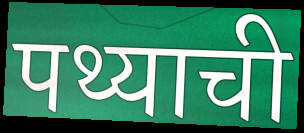
पथ्याची